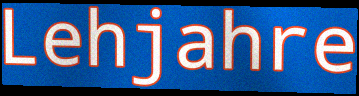
Lehjahre